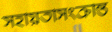
সহায়তাসংক্রান্ত